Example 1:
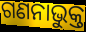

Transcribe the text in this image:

ଗଣନାଭୁକ୍ତ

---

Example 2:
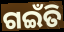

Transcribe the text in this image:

ଗଇଁତି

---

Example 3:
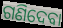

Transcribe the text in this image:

ଗଣିଦେବା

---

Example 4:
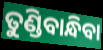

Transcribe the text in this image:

ତୁଣ୍ଡିବାନ୍ଧିବା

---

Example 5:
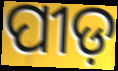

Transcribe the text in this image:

ପୀଡ଼